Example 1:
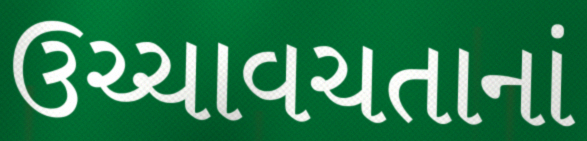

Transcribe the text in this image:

ઉચ્ચાવચતાનાં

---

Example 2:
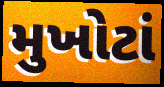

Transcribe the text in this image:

મુખોટાં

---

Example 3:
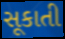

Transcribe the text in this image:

સૂકાતી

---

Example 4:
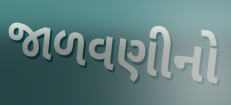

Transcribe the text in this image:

જાળવણીનો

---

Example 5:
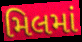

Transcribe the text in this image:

મિલમાં